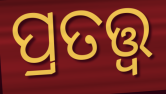
ପ୍ରତତ୍ତ୍ୱ